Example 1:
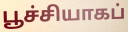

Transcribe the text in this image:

பூச்சியாகப்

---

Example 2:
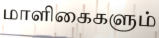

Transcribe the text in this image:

மாளிகைகளும்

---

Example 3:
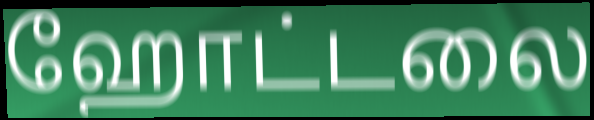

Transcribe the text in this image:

ஹோட்டலை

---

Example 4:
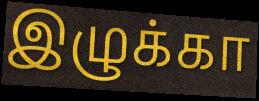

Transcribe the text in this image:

இழுக்கா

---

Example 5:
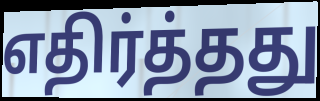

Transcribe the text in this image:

எதிர்த்தது